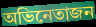
অভিনেতাজন